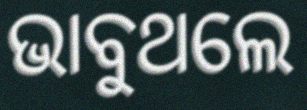
ଭାବୁଥଲେ